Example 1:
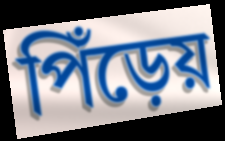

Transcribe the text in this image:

পিঁড়েয়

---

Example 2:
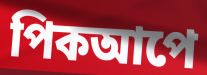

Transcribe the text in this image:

পিকআপে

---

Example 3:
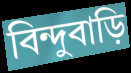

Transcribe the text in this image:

বিন্দুবাড়ি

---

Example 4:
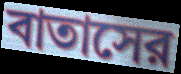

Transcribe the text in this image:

বাতাসের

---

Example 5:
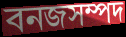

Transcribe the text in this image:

বনজসম্পদ